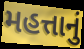
મહત્તાનું